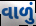
વાળું